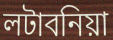
লটাবনিয়া